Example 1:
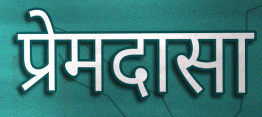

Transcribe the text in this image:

प्रेमदासा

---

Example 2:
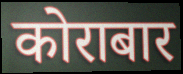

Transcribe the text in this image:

कोराबार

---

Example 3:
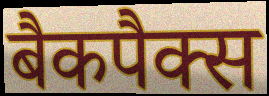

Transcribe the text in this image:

बैकपैक्स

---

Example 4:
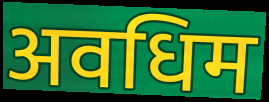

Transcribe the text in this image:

अवधिम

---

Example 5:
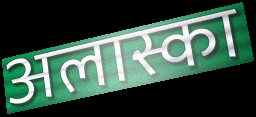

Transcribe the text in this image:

अलास्का